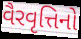
વૈરવૃત્તિનો